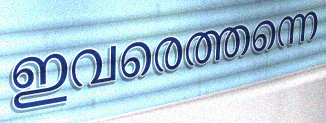
ഇവരെത്തന്നെ